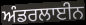
ਅੰਡਰਲਾਈਨ